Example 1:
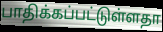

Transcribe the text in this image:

பாதிக்கப்பட்டுள்ளதா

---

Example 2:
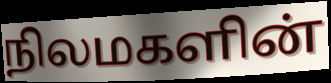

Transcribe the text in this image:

நிலமகளின்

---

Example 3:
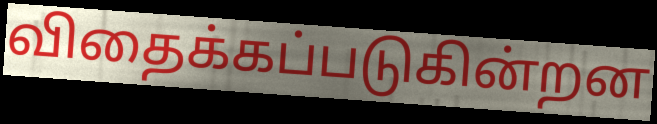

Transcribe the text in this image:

விதைக்கப்படுகின்றன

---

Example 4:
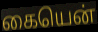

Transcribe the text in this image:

கையென்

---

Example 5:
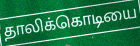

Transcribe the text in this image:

தாலிக்கொடியை